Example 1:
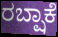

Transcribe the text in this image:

ರಬ್ಷಾಕೆ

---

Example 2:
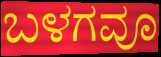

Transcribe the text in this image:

ಬಳಗವೂ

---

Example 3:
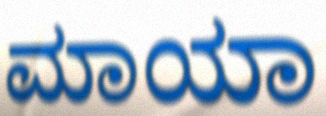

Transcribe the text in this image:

ಮಾಯಾ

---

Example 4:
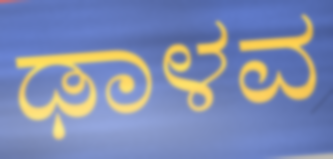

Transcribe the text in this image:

ಢಾಳವ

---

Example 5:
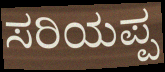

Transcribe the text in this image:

ಸರಿಯಪ್ಪ